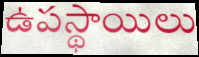
ఉపస్థాయిలు